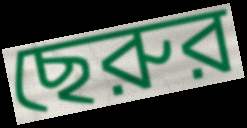
ছেরুর